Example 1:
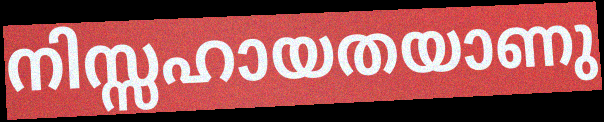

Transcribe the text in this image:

നിസ്സഹായതയാണു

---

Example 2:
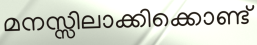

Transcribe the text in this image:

മനസ്സിലാക്കിക്കൊണ്ട്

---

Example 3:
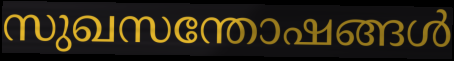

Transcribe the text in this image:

സുഖസന്തോഷങ്ങൾ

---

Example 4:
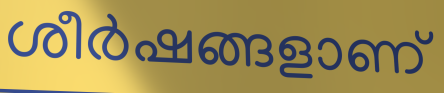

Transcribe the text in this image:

ശീർഷങ്ങളാണ്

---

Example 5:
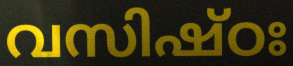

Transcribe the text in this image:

വസിഷ്ഠഃ